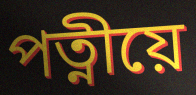
পত্নীয়ে